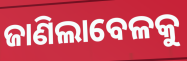
ଜାଣିଲାବେଳକୁ